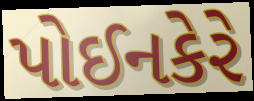
પોઈનકેરે